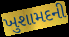
ખુશામદની